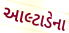
આલ્ટાડેના